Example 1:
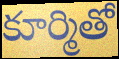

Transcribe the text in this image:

కూర్మితో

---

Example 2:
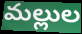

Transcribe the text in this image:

మల్లుల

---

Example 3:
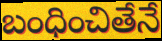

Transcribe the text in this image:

బంధించితేనే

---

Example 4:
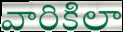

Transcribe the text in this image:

వారికిలా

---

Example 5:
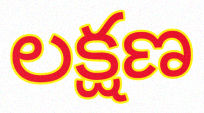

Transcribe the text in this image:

లక్షణ